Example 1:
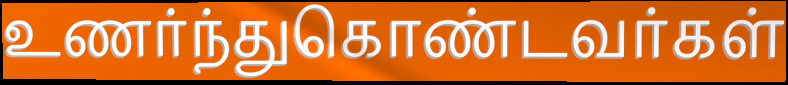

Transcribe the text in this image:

உணர்ந்துகொண்டவர்கள்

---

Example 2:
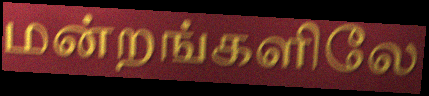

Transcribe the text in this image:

மன்றங்களிலே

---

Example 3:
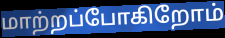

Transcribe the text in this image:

மாற்றப்போகிறோம்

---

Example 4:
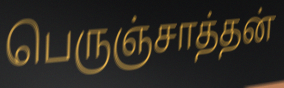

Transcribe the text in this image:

பெருஞ்சாத்தன்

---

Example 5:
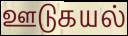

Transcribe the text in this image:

ஊடுகயல்